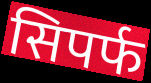
सिपर्फ